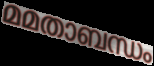
മമതാബന്ധം